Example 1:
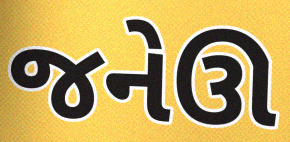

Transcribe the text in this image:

જનેઊ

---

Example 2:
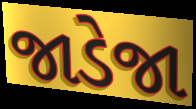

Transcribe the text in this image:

જાડેજા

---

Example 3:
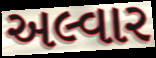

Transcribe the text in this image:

અલ્વાર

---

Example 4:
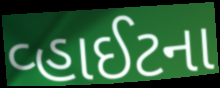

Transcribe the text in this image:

વ્હાઈટના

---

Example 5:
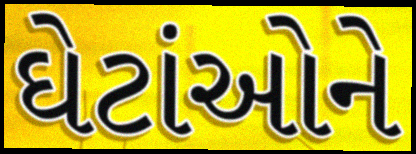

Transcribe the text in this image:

ઘેટાંઓને